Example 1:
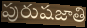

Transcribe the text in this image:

పురుషజాతి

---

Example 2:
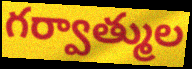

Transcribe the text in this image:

గర్వాత్ముల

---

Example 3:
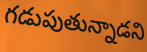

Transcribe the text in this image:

గడుపుతున్నాడని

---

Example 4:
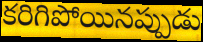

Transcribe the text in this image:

కరిగిపోయినప్పుడు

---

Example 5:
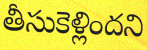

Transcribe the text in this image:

తీసుకెళ్లిందని